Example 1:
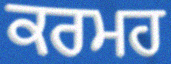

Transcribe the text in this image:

ਕਰਮਹ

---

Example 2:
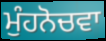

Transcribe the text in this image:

ਮੁੰਹਨੋਚਵਾ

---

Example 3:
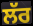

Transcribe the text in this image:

ਲੱਰ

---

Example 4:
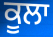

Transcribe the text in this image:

ਕੂਲਾ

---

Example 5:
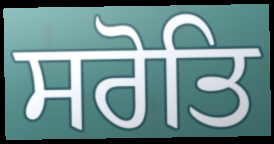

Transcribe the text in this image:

ਸਰੋਤਿ